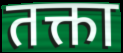
तक्ता